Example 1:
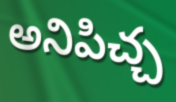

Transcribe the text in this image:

అనిపిచ్చ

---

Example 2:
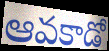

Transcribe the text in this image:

ఆవకాడో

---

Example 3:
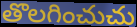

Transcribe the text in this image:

తొలగించుచు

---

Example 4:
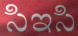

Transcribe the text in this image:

సిఇసి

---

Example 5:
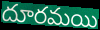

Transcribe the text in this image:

దూరమయి